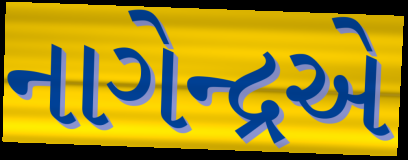
નાગેન્દ્રએ